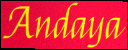
Andaya